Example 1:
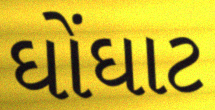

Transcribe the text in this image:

ઘોંઘાટ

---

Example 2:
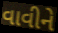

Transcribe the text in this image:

વાવીને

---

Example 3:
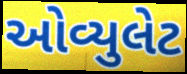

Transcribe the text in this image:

ઓવ્યુલેટ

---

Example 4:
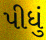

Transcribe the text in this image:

પીધું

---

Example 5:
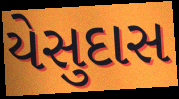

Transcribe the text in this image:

યેસુદાસ